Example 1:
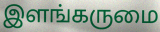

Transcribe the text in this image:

இளங்கருமை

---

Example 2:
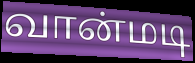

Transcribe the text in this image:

வான்மடி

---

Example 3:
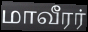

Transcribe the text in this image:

மாவீரர்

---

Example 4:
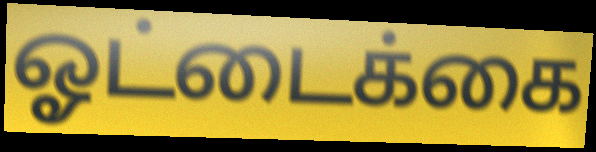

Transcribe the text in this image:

ஓட்டைக்கை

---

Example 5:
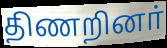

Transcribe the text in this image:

திணறினர்